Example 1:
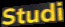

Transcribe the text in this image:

Studi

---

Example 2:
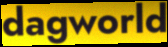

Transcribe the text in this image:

dagworld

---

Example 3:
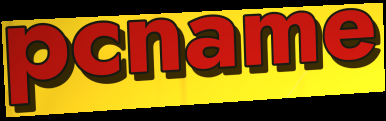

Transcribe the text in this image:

pcname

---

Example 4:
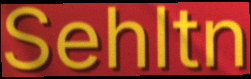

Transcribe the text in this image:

Sehltn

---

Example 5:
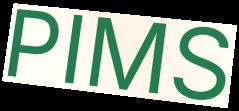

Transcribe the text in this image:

PIMS